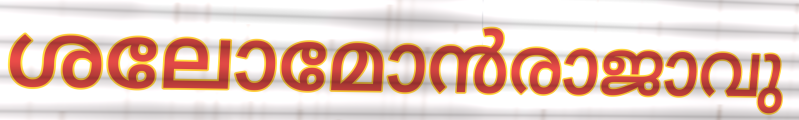
ശലോമോൻരാജാവു